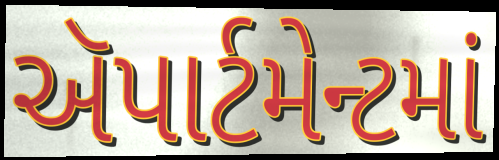
ઍપાર્ટમેન્ટમાં